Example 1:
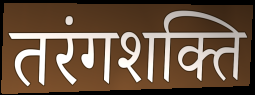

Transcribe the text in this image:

तरंगशक्ति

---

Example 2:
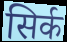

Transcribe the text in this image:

सिर्क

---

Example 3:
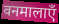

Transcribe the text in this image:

वनमालाएँ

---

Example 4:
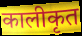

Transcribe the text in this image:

कालीकृत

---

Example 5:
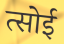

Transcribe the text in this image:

त्सोई